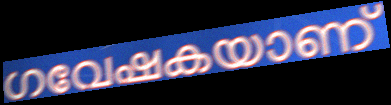
ഗവേഷകയാണ്